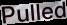
Pulled